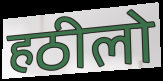
हठीलो